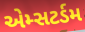
એમ્સટર્ડમ